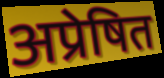
अप्रेषित